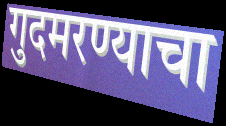
गुदमरण्याचा